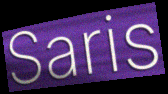
Saris